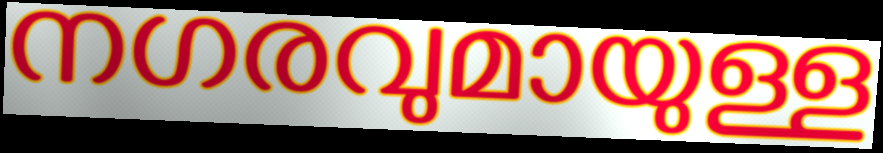
നഗരവുമായുള്ള